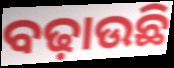
ବଢ଼ାଉଛି